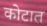
कोटात